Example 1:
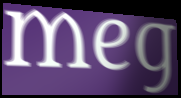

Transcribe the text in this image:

meg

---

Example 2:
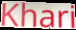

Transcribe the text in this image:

Khari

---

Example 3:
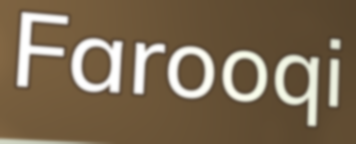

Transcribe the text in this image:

Farooqi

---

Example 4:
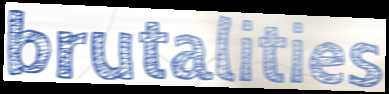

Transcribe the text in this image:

brutalities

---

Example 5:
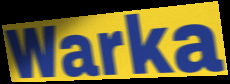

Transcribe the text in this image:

Warka